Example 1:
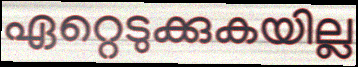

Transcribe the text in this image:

ഏറ്റെടുക്കുകയില്ല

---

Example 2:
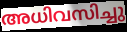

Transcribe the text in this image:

അധിവസിച്ചു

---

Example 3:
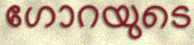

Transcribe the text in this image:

ഗോറയുടെ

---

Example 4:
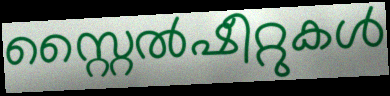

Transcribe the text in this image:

സ്റ്റൈൽഷീറ്റുകൾ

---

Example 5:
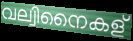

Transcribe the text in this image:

വല്വിനൈകള്